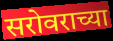
सरोवराच्या